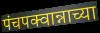
पंचपक्वान्नाच्या